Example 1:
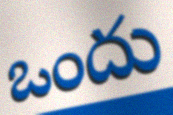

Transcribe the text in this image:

ఒందు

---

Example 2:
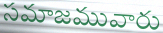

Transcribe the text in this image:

సమాజమువారు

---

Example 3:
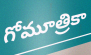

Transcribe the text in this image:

గోమూత్రికా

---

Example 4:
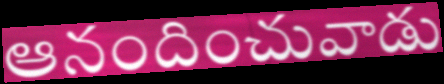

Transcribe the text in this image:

ఆనందించువాడు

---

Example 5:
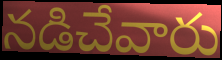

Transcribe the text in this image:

నడిచేవారు